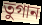
তুগান